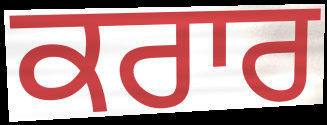
ਕਰਾਰ